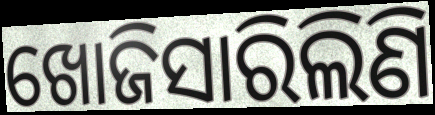
ଖୋଜିସାରିଲିଣି